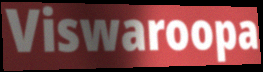
Viswaroopa